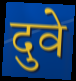
दुवे